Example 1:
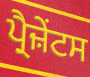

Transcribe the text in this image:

ਪ੍ਰੈਜ਼ੇਂਟਸ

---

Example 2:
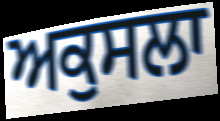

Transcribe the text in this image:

ਅਕੁਸਲਾ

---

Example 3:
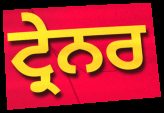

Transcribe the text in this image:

ਟ੍ਰੇਨਰ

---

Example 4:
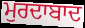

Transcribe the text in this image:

ਮੁਰਦਾਬਾਦ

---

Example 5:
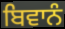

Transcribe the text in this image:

ਬਿਵਾਨੰ